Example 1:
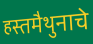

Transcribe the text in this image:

हस्तमैथुनाचे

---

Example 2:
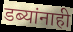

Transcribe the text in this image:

डब्यांनाही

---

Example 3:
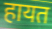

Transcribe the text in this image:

हायत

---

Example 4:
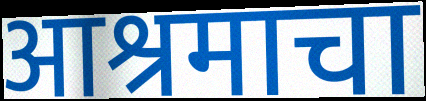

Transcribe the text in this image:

आश्रमाचा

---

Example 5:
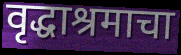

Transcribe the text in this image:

वृद्धाश्रमाचा